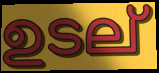
ഉടല്